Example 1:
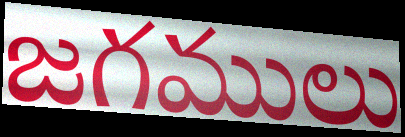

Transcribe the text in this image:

జగములు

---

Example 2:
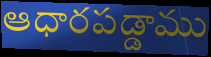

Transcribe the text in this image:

ఆధారపడ్డాము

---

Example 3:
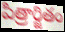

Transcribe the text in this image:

పిత్రార్జితం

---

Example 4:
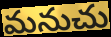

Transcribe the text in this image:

మనుచు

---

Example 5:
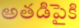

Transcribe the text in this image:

అతడిపైకి